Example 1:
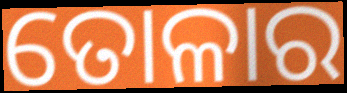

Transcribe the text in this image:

ତୋଳାର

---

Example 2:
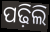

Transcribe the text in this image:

ପଢ଼ିଲି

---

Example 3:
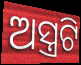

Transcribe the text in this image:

ଅସ୍ତ୍ରଟି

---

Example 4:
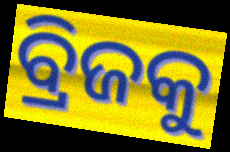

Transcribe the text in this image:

ବ୍ରିଜକୁ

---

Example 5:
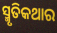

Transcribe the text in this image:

ସ୍ମୃତିକଥାର